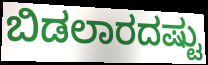
ಬಿಡಲಾರದಷ್ಟು